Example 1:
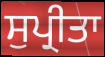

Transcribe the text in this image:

ਸੁਪ੍ਰੀਤਾ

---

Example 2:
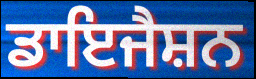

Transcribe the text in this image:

ਡਾਇਜੈਸ਼ਨ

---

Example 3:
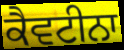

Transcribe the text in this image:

ਕੈਵਟੀਨਾ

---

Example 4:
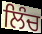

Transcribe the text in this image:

ਲਿੰਚ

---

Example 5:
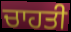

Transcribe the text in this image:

ਚਾਹਤੀ